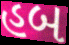
હબ